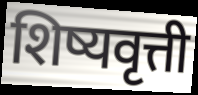
शिष्यवृत्ती